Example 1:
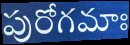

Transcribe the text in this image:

పురోగమాః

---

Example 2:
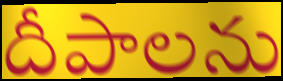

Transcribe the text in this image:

దీపాలను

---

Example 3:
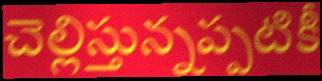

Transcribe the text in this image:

చెల్లిస్తున్నప్పటికీ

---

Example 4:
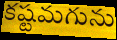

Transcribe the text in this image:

కష్టమగును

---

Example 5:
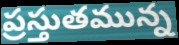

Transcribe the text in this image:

ప్రస్తుతమున్న